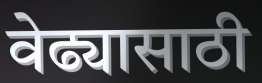
वेढ्यासाठी